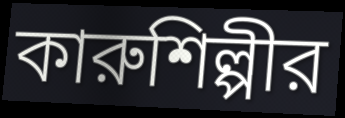
কারুশিল্পীর